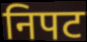
निपट